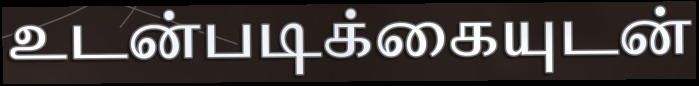
உடன்படிக்கையுடன்